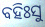
ବହିଃସୁ